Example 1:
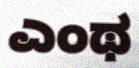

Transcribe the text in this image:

ಎಂಥ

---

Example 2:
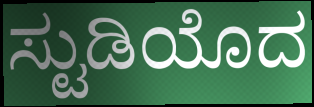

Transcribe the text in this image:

ಸ್ಟುಡಿಯೊದ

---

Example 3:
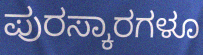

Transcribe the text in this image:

ಪುರಸ್ಕಾರಗಳೂ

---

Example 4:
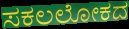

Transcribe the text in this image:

ಸಕಲಲೋಕದ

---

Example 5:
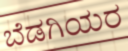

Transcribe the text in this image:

ಬೆಡಗಿಯರ